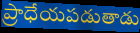
ప్రాధేయపడుతాడు